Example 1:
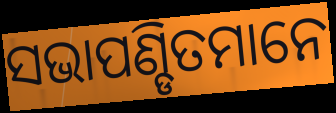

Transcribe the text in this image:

ସଭାପଣ୍ଡିତମାନେ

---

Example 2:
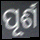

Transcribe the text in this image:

ପୂର୍ଶ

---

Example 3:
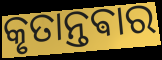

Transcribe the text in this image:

କୃତାନ୍ତଵାର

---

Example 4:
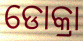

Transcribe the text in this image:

ଡୋକ୍ରା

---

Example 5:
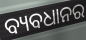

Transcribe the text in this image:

ବ୍ୟବଧାନର